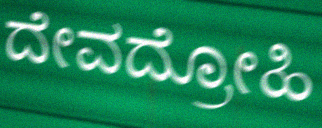
ದೇವದ್ರೋಹಿ